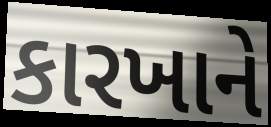
કારખાને